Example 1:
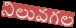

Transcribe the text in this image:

నిలువగల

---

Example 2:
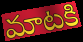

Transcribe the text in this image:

మాటకి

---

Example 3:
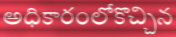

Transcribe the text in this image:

అధికారంలోకొచ్చిన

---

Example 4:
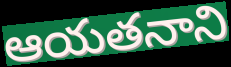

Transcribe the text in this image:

ఆయతనాని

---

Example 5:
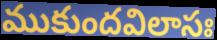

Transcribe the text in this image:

ముకుందవిలాసః